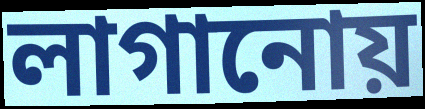
লাগানোয়